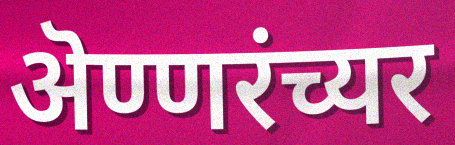
ऄण्णरंच्यर